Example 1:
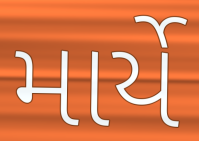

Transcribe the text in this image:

માર્યે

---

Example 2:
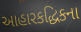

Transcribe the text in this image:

આહારકદ્ધિકના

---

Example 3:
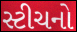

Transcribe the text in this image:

સ્ટીચનો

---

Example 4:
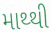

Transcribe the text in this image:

માથ્થી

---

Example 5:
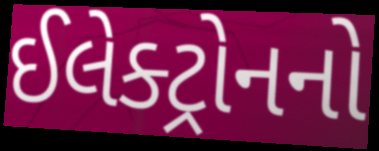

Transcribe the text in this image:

ઈલેક્ટ્રોનનો